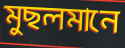
মুছলমানে